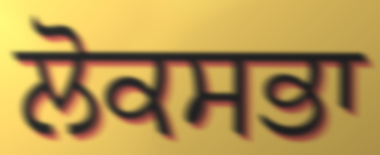
ਲੋਕਸਭਾ